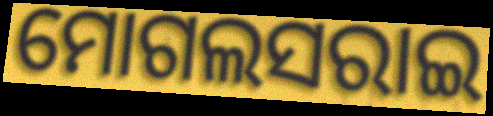
ମୋଗଲସରାଇ